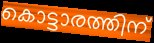
കൊട്ടാരത്തിന്